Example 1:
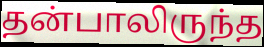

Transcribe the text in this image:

தன்பாலிருந்த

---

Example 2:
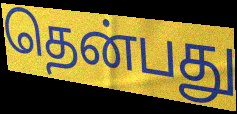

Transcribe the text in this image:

தென்பது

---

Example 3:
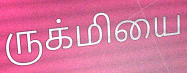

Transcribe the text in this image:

ருக்மியை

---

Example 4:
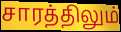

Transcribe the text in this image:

சாரத்திலும்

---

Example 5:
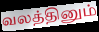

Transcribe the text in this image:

வலத்தினும்